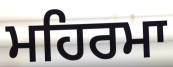
ਮਹਿਰਮਾ